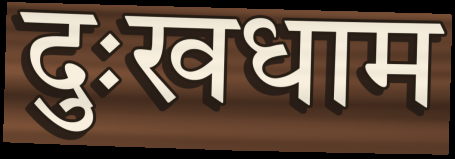
दुःखधाम